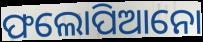
ଫଲୋପିଆନୋ